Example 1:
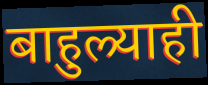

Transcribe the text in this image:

बाहुल्याही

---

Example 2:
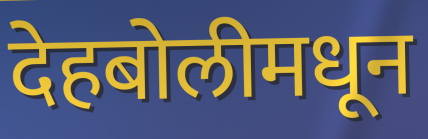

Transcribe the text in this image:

देहबोलीमधून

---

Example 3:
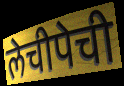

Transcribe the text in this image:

लेचीपेची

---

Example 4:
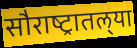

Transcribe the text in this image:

सौराष्ट्रातल्या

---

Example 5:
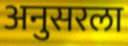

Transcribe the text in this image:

अनुसरला